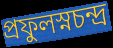
প্রফুলস্নচন্দ্র